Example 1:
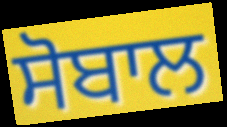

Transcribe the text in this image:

ਸੋਬਾਲ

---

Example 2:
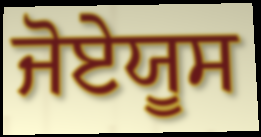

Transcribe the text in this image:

ਜੋਏਯੂਸ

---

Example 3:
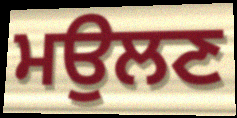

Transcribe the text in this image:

ਮਉਲਣ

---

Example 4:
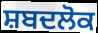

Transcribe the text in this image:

ਸ਼ਬਦਲੋਕ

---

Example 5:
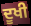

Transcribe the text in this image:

ਦੂਖੀ